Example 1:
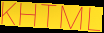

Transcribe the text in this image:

KHTML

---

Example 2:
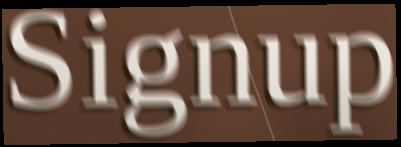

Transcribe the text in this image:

Signup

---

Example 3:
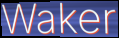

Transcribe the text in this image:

Waker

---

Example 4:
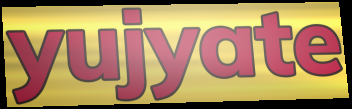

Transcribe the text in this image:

yujyate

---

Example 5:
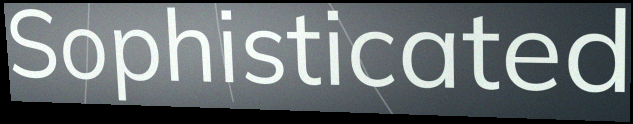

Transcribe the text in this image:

Sophisticated